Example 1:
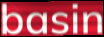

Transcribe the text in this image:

basin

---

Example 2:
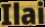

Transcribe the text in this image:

Ilai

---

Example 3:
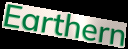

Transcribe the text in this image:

Earthern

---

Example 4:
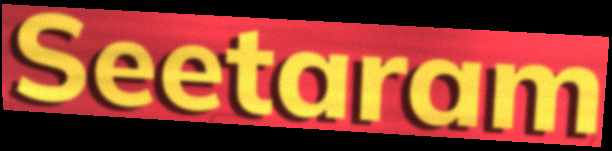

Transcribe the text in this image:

Seetaram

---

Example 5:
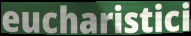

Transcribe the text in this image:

eucharistici